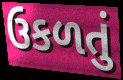
ઉકળતું